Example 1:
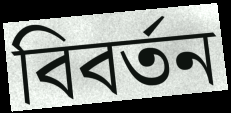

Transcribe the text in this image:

বিবৰ্তন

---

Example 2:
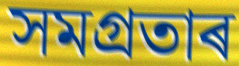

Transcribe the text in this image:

সমগ্ৰতাৰ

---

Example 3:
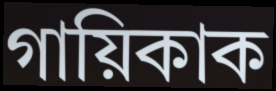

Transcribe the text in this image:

গায়িকাক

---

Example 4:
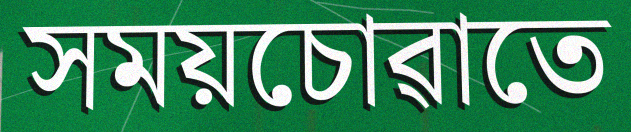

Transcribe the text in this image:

সময়চোৱাতে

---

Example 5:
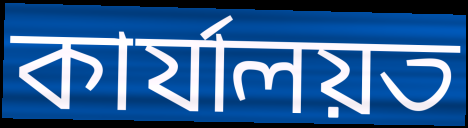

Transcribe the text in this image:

কাৰ্যালয়ত